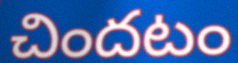
చిందటం